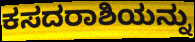
ಕಸದರಾಶಿಯನ್ನು